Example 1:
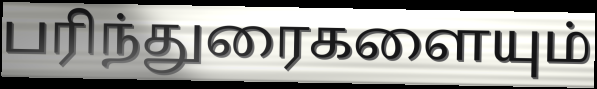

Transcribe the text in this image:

பரிந்துரைகளையும்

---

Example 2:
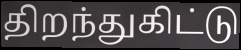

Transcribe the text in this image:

திறந்துகிட்டு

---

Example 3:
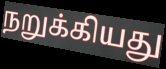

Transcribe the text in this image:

நறுக்கியது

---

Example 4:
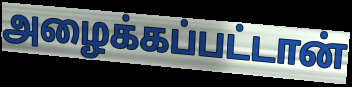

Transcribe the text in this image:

அழைக்கப்பட்டான்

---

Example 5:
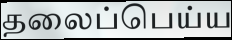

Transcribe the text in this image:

தலைப்பெய்ய